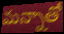
మన్నాతో